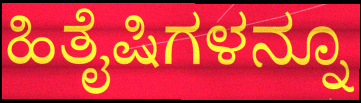
ಹಿತೈಷಿಗಳನ್ನೂ